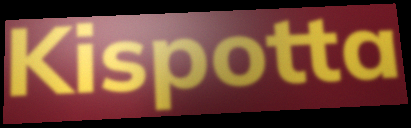
Kispotta